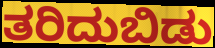
ತರಿದುಬಿಡು